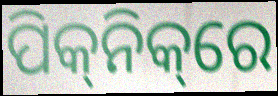
ପିକ୍‌ନିକ୍‌ରେ